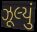
ઝૂલ્યું